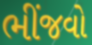
ભીંજવો